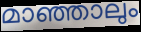
മാഞ്ഞാലും